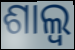
ଶାଲ୍ୱ